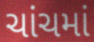
ચાંચમાં